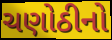
ચણોઠીનો